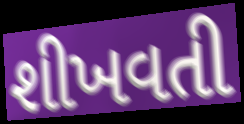
શીખવતી